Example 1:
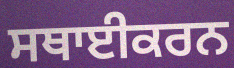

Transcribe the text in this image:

ਸਥਾਈਕਰਨ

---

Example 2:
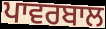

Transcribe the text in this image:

ਪਾਵਰਬਾਲ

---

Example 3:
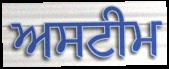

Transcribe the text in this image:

ਅਸਟੀਮ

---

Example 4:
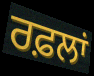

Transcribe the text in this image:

ਰਫ਼ਲਾਂ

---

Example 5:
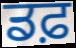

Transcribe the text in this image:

ਡਫ਼